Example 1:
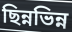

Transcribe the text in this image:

ছিন্নভিন্ন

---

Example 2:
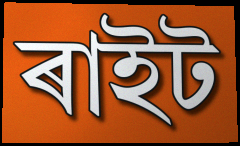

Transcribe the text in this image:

ৰাইট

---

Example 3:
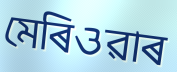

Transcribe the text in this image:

মেৰিওৱাৰ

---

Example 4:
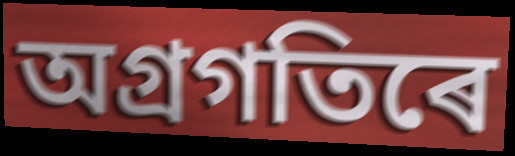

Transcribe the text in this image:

অগ্ৰগতিৰে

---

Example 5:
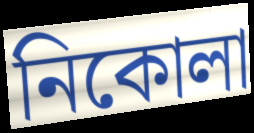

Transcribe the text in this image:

নিকোলা